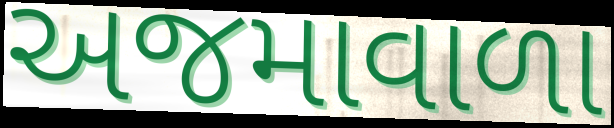
અજમાવાળા